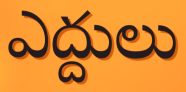
ఎద్దులు